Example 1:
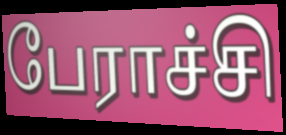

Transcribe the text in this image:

பேராச்சி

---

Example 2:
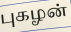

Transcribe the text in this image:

புகழன்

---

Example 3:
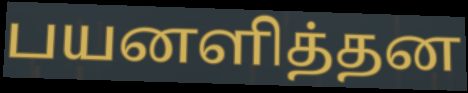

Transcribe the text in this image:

பயனளித்தன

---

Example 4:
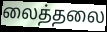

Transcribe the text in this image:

லைத்தலை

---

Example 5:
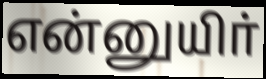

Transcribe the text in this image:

என்னுயிர்